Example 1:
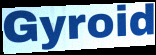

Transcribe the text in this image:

Gyroid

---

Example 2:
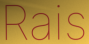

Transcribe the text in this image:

Rais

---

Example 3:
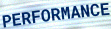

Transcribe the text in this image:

PERFORMANCE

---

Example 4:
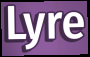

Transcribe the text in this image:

Lyre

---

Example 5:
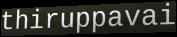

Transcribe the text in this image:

thiruppavai